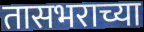
तासभराच्या